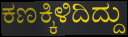
ಕಣಕ್ಕಿಳಿದಿದ್ದು